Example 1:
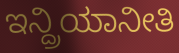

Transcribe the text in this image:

ಇನ್ದ್ರಿಯಾನೀತಿ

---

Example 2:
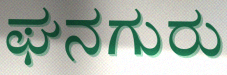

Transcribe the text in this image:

ಘನಗುರು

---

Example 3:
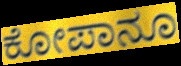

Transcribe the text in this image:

ಕೋಪಾನೂ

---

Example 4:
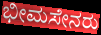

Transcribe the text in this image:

ಭೀಮಸೇನರು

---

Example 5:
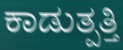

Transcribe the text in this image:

ಕಾಡುತ್ಪತ್ತಿ